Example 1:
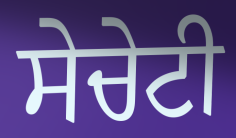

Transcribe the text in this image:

ਸੇਚੇਟੀ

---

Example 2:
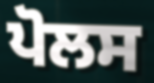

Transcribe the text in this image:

ਪੋਲਸ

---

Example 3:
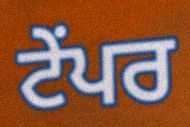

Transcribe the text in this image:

ਟੇਂਪਰ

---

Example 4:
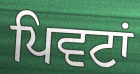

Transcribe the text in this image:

ਪਿਵਟਾਂ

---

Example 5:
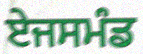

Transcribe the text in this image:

ਏਜਸਮੰਡ